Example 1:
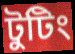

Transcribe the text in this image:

টুটিং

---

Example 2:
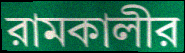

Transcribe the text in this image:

রামকালীর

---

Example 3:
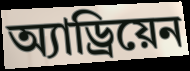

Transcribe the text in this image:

অ্যাড্রিয়েন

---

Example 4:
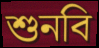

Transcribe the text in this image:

শুনবি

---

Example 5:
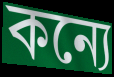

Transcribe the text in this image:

কন্যে